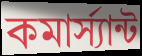
কমার্স্যান্ট